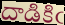
దాడికిఁ